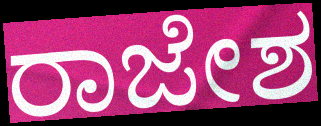
ರಾಜೇಶ